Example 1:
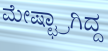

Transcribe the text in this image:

ಮೇಷ್ಟ್ರಾಗಿದ್ದ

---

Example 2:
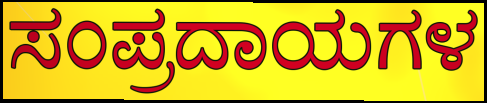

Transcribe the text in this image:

ಸಂಪ್ರದಾಯಗಳ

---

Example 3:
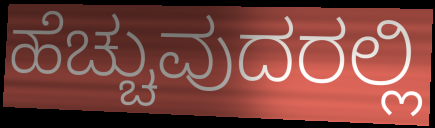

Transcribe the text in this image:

ಹೆಚ್ಚುವುದರಲ್ಲಿ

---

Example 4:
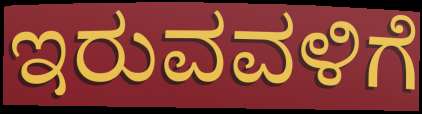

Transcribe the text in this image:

ಇರುವವಳಿಗೆ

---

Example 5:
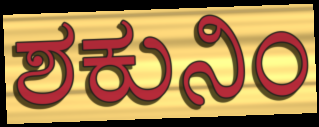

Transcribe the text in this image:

ಶಕುನಿಂ